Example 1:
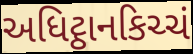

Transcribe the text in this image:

અધિટ્ઠાનકિચ્ચં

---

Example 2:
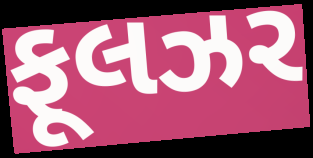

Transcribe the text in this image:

ફૂલઝર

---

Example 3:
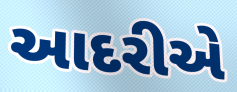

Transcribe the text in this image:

આદરીએ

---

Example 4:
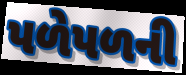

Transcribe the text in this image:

પળેપળની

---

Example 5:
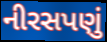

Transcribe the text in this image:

નીરસપણું